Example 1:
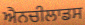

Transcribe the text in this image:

ਐਨਚੀਲਾਡਸ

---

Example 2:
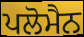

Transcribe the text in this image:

ਪਲੋਮੈਨ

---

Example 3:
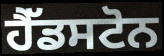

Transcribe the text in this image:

ਹੈੱਡਸਟੋਨ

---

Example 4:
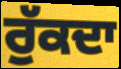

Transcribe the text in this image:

ਰੁੱਕਦਾ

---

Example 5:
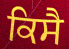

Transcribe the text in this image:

ਕਿਸੈ